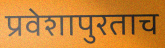
प्रवेशापुरताच